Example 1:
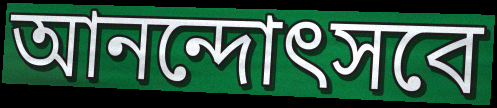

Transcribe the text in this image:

আনন্দোৎসবে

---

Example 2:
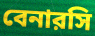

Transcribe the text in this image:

বেনারসি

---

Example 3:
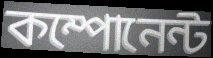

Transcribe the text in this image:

কম্পোনেন্ট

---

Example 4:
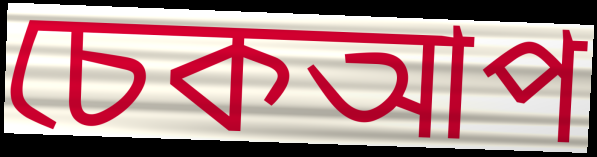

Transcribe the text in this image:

চেকআপ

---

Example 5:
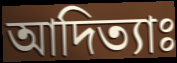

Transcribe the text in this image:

আদিত্যাঃ